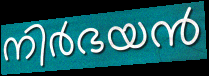
നിർഭയൻ